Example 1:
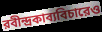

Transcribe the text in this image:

রবীন্দ্রকাব্যবিচারেও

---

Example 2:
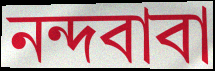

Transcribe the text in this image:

নন্দবাবা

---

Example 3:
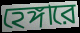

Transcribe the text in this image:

হেঙ্গারে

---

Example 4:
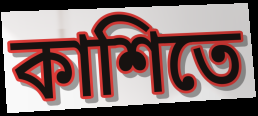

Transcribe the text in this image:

কাশিতে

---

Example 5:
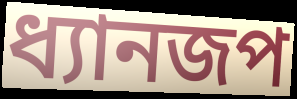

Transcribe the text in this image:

ধ্যানজপ